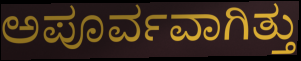
ಅಪೂರ್ವವಾಗಿತ್ತು